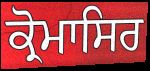
ਕ੍ਰੋਮਾਸਿਰ